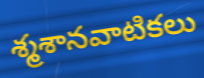
శ్మశానవాటికలు